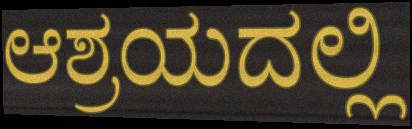
ಆಶ್ರಯದಲ್ಲಿ